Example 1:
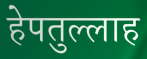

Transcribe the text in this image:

हेपतुल्लाह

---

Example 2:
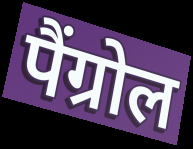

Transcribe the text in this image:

पैंग्रोल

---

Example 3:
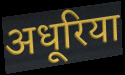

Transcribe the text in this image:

अधूरिया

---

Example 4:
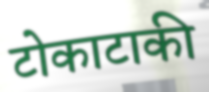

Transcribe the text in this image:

टोकाटाकी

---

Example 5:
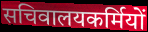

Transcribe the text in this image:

सचिवालयकर्मियों